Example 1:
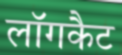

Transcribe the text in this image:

लॉगकैट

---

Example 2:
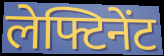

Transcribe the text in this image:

लेफ्टिनेंट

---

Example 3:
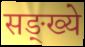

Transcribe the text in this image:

सङ्ख्ये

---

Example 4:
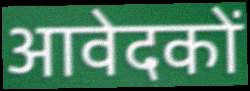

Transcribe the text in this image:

आवेदकों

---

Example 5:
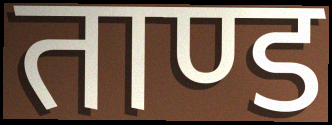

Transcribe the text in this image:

ताण्ड